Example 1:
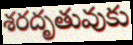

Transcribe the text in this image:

శరదృతువుకు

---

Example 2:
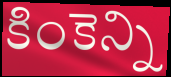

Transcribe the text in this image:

కింకెన్ని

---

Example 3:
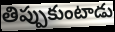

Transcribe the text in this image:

తిప్పుకుంటాడు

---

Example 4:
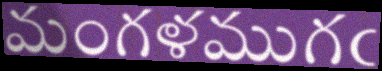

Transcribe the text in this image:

మంగళముగఁ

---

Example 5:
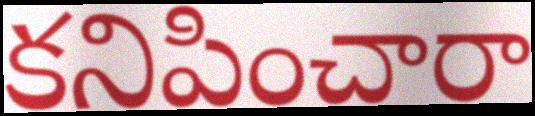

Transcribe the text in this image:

కనిపించారా